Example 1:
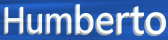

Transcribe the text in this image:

Humberto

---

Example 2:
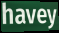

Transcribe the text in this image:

havey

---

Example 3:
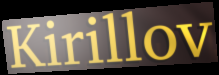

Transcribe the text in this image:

Kirillov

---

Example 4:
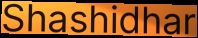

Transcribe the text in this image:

Shashidhar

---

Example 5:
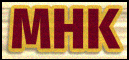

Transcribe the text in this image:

MHK